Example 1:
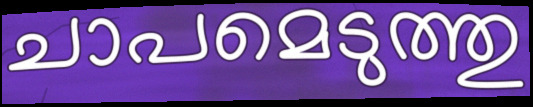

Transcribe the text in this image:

ചാപമെടുത്തു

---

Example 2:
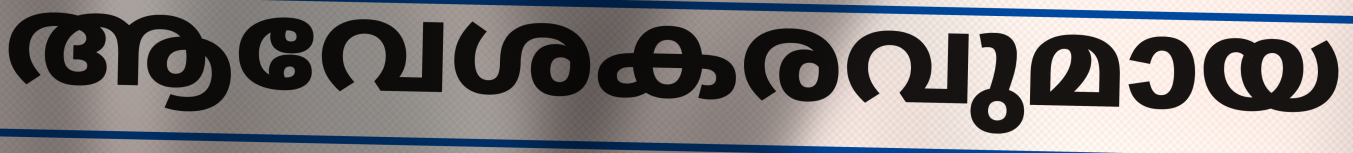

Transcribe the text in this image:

ആവേശകരവുമായ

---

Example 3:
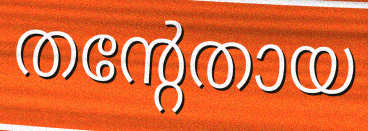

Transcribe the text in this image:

തന്റേതായ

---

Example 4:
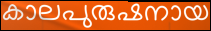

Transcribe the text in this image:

കാലപുരുഷനായ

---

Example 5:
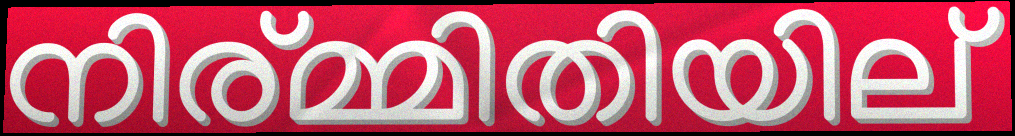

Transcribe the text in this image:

നിര്മ്മിതിയില്